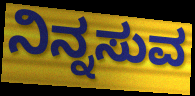
ನಿನ್ನಸುವ